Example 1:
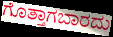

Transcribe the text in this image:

ಗೊತ್ತಾಗಬಾರದು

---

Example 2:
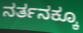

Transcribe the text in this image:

ನರ್ತನಕ್ಕೂ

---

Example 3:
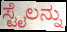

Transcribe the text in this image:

ಸ್ಟೈಲನ್ನು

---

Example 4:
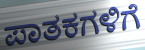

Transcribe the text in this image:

ಪಾತಕಗಳಿಗೆ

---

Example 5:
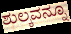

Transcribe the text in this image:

ಶುಲ್ಕವನ್ನೂ